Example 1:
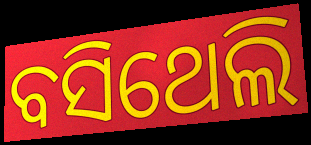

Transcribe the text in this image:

ବସିଥେଲି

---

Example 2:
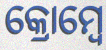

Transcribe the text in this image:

କ୍ରୋମ୍ବେ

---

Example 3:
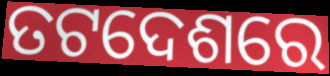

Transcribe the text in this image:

ତଟଦେଶରେ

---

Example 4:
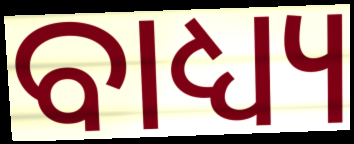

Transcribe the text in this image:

ବାଧ୍ୟ୍ୟ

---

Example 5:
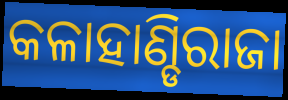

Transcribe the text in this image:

କଳାହାଣ୍ଡିରାଜା